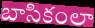
బాసికంలా